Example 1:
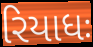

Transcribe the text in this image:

રિયાધઃ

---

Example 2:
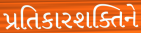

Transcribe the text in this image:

પ્રતિકારશક્તિને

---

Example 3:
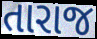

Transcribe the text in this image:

તારાજ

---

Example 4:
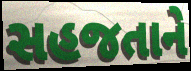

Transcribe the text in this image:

સહજતાને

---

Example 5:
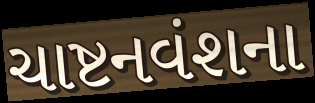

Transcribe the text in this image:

ચાષ્ટનવંશના